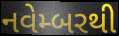
નવેમ્બરથી